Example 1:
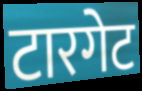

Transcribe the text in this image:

टारगेट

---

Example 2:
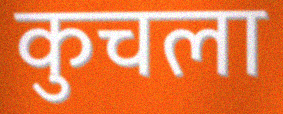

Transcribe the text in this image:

कुचला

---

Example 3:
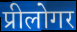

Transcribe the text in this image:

प्रीलोगर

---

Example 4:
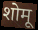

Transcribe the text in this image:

शोमू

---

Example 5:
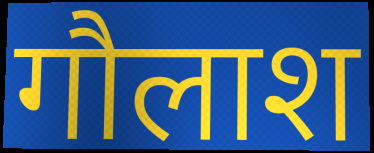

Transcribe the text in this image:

गौलाश